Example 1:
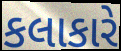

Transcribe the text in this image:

કલાકારે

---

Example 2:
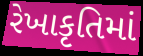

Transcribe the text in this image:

રેખાકૃતિમાં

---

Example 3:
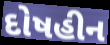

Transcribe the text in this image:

દોષહીન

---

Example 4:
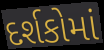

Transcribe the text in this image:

દર્શકોમાં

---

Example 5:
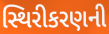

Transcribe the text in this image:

સ્થિરીકરણની